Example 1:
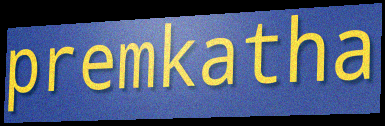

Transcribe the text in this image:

premkatha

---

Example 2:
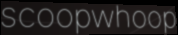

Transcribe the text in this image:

scoopwhoop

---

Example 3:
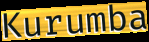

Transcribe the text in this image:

Kurumba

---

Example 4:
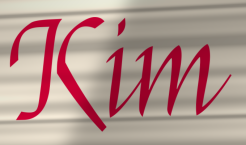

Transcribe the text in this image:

Kim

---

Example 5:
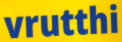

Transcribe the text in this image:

vrutthi